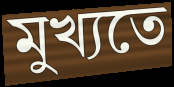
মুখ্যতে